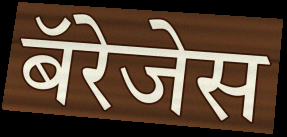
बॅरेजेस